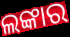
ଲଙ୍କାର